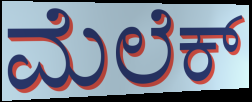
ಮೆಲೆಕ್